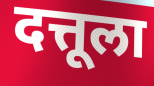
दत्तूला